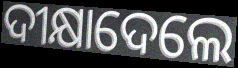
ଦୀକ୍ଷାଦେଲେ